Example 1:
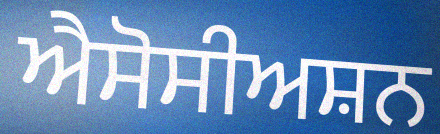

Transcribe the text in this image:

ਐਸੋਸੀਅਸ਼ਨ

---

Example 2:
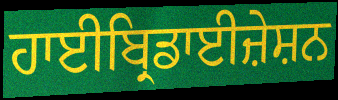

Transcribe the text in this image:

ਹਾਈਬ੍ਰਿਡਾਈਜ਼ੇਸ਼ਨ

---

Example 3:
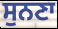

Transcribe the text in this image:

ਸੁਨਣਾ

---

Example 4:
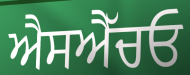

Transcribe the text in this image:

ਐਸਐੱਚਓ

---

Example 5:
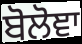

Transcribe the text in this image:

ਬੋਲੋਞਾ